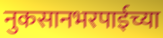
नुकसानभरपाईच्या